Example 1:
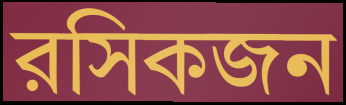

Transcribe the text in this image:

রসিকজন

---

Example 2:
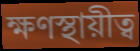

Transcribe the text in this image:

ক্ষণস্থায়ীত্ব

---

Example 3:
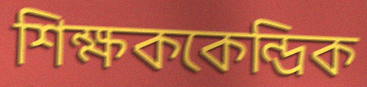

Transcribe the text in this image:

শিক্ষককেন্দ্রিক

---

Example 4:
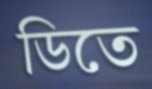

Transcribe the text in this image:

ডিতে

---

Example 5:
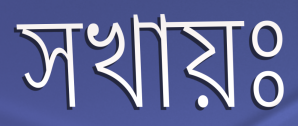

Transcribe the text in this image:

সখায়ঃ